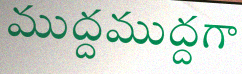
ముద్దముద్దగా